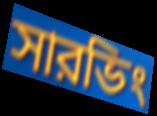
সারভিং